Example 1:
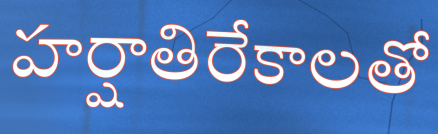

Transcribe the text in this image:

హర్షాతిరేకాలతో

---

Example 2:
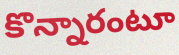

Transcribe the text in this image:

కొన్నారంటూ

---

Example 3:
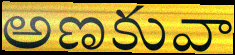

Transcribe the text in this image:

అణకువా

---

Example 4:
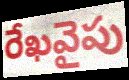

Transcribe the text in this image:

రేఖవైపు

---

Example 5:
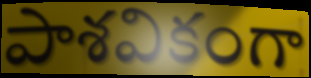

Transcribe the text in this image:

పాశవికంగా